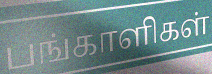
பங்காளிகள்